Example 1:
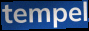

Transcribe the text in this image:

tempel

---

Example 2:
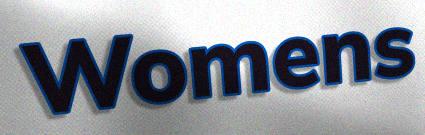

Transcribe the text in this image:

Womens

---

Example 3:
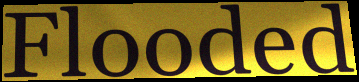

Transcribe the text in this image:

Flooded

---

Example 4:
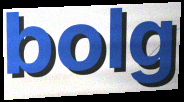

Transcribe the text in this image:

bolg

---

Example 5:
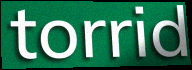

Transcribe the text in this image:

torrid